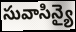
సువాసిన్యై